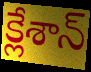
క్లేశాన్